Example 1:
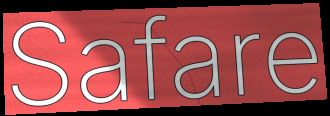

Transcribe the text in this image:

Safare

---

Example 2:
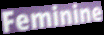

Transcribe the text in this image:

Feminine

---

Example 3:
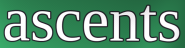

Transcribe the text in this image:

ascents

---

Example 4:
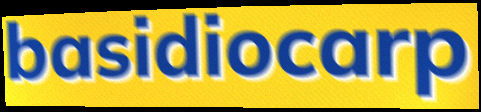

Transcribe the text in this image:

basidiocarp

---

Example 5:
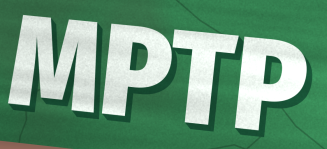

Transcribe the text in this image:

MPTP